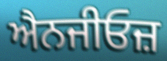
ਐਨਜੀਓਜ਼